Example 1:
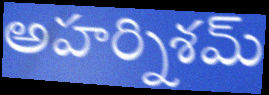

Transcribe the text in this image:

అహర్నిశమ్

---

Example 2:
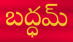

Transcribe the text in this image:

బద్ధమ్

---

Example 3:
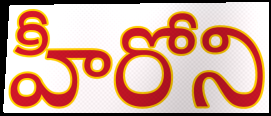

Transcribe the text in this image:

హీరోని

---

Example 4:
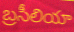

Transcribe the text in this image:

బ్రసీలియా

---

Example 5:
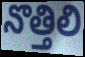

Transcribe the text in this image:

నొత్తిలి